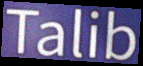
Talib